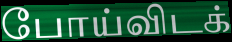
போய்விடக்